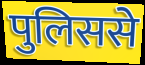
पुलिससे